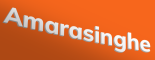
Amarasinghe